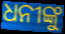
ଧନୀଙ୍କୁ